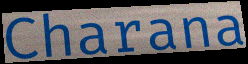
Charana